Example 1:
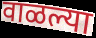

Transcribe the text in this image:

वाळल्या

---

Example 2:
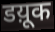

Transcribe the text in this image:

डय़ूक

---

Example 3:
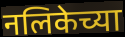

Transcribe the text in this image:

नलिकेच्या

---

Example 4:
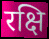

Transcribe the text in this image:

रक्षि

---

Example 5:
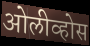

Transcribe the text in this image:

ओलीव्होस